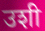
उशी